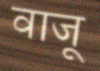
वाजू